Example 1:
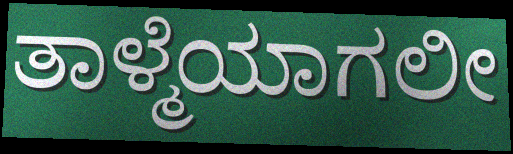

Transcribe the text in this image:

ತಾಳ್ಮೆಯಾಗಲೀ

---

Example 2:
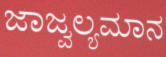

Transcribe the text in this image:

ಜಾಜ್ವಲ್ಯಮಾನ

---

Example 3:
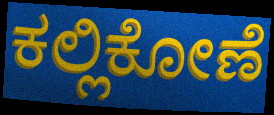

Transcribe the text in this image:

ಕಲ್ಲಿಕೋಣೆ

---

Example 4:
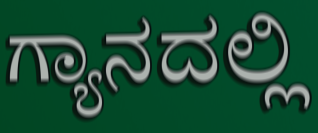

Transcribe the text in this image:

ಗ್ಯಾನದಲ್ಲಿ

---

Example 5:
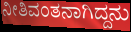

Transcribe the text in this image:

ನೀತಿವಂತನಾಗಿದ್ದನು